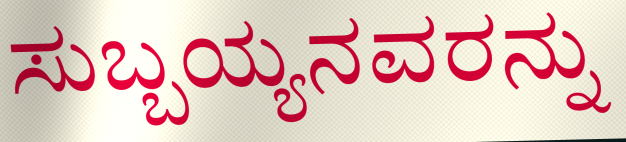
ಸುಬ್ಬಯ್ಯನವರನ್ನು